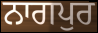
ਨਾਗਪੁਰ